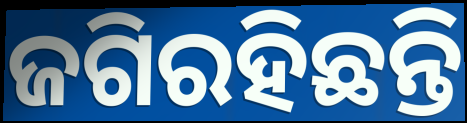
ଜଗିରହିଛନ୍ତି